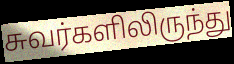
சுவர்களிலிருந்து